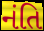
નંતિ